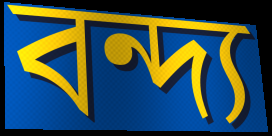
বন্দ্য